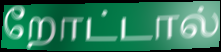
றோட்டால்